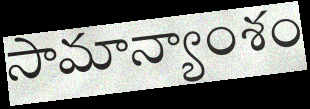
సామాన్యాంశం